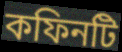
কফিনটি